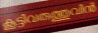
കൂട്ടിവരുത്തുവിൻ